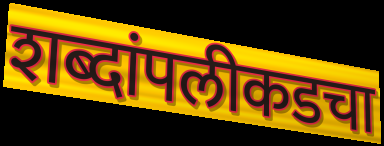
शब्दांपलीकडचा